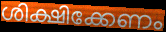
ശിക്ഷിക്കേണം